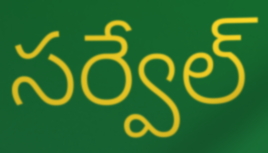
సర్వేల్